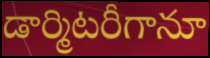
డార్మిటరీగానూ